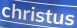
christus